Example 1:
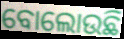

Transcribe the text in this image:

ବୋଲୋଉଛି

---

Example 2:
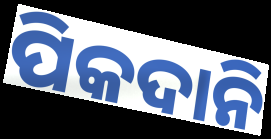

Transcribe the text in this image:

ପିକଦାନି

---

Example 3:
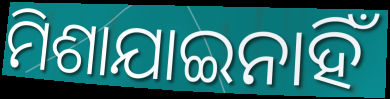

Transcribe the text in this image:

ମିଶାଯାଇନାହିଁ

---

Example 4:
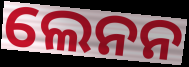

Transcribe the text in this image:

ଲେନନ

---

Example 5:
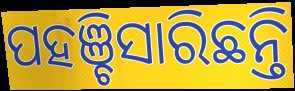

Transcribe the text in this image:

ପହଞ୍ଚିସାରିଛନ୍ତି